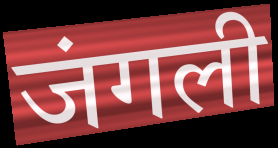
जंगली